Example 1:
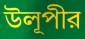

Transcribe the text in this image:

উলূপীর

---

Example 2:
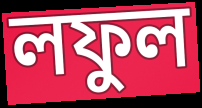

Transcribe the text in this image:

লফুল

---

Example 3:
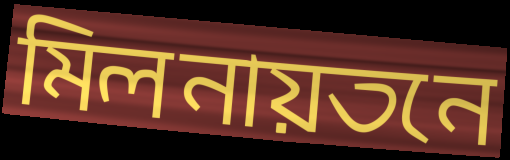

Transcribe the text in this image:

মিলনায়তনে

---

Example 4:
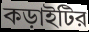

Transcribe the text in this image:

কড়াইটির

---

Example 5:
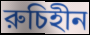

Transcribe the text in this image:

রুচিহীন